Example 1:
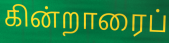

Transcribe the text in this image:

கின்றாரைப்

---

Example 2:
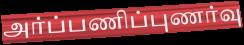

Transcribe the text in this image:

அர்ப்பணிப்புணர்வு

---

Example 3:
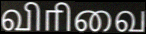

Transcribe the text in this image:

விரிவை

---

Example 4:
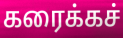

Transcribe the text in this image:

கரைக்கச்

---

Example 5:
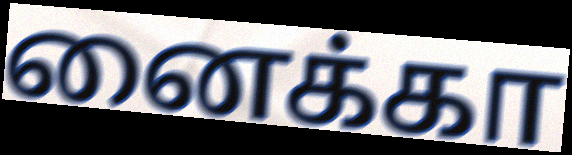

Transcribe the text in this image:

னைக்கா